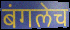
बंगलेच